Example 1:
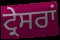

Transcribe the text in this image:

ਟ੍ਰੇਸਰਾਂ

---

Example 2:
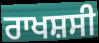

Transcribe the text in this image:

ਰਾਖਸ਼ਸੀ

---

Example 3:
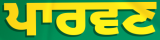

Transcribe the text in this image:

ਪਾਰਵਣ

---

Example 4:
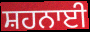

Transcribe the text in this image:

ਸ਼ਹਨਾਈ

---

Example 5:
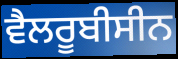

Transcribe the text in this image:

ਵੈਲਰੂਬੀਸੀਨ